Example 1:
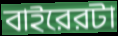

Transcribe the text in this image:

বাইরেরটা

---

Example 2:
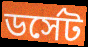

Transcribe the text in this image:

ডর্সেট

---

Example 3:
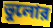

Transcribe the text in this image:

ভুলোর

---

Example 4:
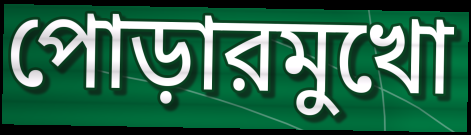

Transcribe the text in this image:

পোড়ারমুখো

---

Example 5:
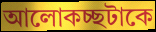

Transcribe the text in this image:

আলোকচ্ছটাকে